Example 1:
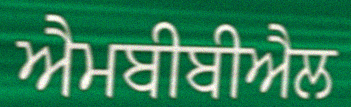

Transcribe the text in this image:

ਐਮਬੀਬੀਐਲ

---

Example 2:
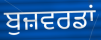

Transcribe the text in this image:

ਬੁਜ਼ਵਰਡਾਂ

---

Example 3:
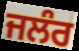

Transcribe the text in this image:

ਜਲੰਰ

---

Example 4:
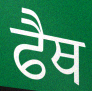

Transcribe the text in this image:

ਫੈਥ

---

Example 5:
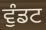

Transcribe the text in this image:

ਵੁੰਡਟ